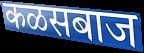
कळसबाज